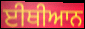
ਈਥੀਆਨ